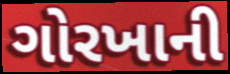
ગોરખાની